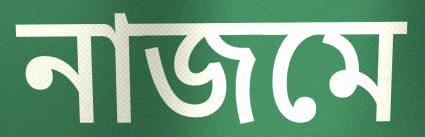
নাজমে